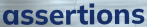
assertions